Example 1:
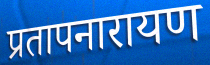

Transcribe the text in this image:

प्रतापनारायण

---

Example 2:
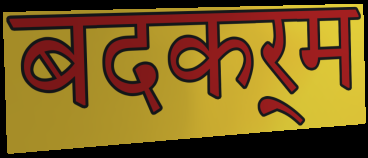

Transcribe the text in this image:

बदकर्म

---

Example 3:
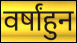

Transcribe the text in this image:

वर्षांहुन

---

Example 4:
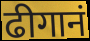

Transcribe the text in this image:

ढीगानं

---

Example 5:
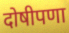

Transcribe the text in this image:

दोषीपणा